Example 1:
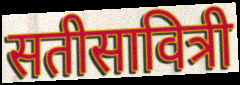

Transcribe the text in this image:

सतीसावित्री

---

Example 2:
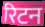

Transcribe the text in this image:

रिटन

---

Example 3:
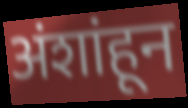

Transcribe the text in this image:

अंशांहून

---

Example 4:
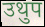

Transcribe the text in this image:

उथुप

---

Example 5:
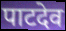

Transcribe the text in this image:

पाटदेव